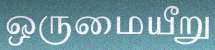
ஒருமையீறு